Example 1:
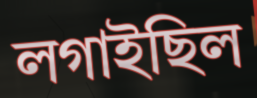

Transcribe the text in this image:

লগাইছিল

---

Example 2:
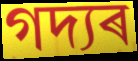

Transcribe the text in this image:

গদ্যৰ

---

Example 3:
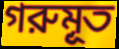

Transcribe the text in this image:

গৰুমূত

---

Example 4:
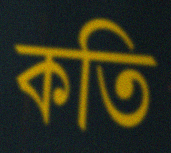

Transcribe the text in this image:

কতি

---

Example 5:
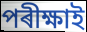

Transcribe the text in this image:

পৰীক্ষাই